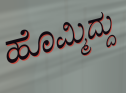
ಹೊಮ್ಮಿದ್ದು